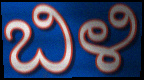
ಬಿಳಿ